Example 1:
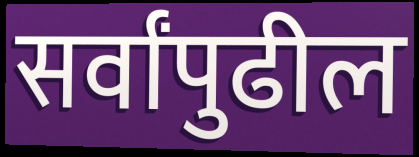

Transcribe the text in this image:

सर्वांपुढील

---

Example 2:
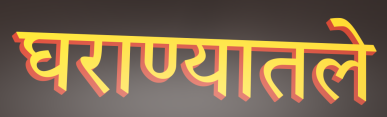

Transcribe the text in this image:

घराण्यातले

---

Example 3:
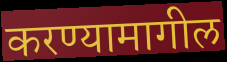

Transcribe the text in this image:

करण्यामागील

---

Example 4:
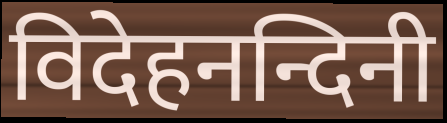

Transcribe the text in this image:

विदेहनन्दिनी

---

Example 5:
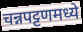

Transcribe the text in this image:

चन्नपट्टणमध्ये